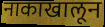
नाकाखालून